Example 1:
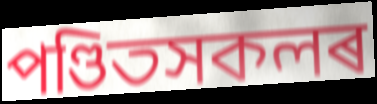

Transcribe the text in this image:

পণ্ডিতসকলৰ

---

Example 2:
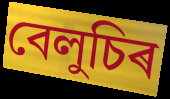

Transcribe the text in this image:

বেলুচিৰ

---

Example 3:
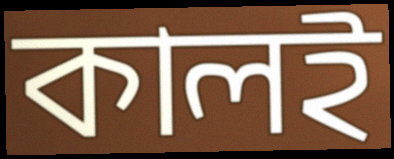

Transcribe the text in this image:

কালই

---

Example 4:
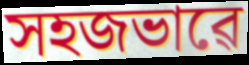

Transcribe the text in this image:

সহজভাৱে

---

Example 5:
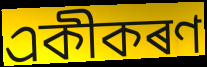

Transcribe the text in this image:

একীকৰণ